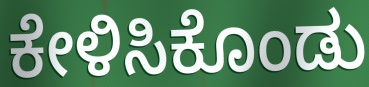
ಕೇಳಿಸಿಕೊಂಡು